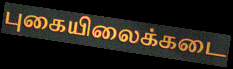
புகையிலைக்கடை